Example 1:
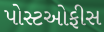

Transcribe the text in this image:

પોસ્ટઓફીસ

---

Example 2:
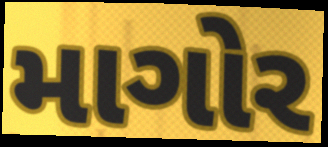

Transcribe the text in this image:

માગોર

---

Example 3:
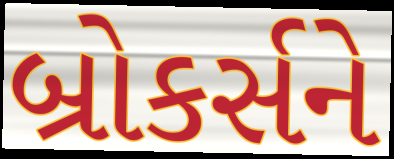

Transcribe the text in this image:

બ્રોકર્સને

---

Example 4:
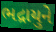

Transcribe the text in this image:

ભદ્રાયુને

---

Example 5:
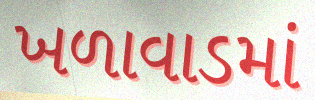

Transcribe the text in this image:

ખળાવાડમાં